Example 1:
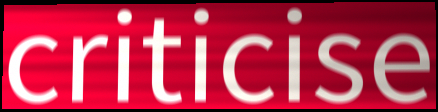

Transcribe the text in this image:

criticise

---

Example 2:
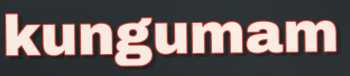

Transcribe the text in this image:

kungumam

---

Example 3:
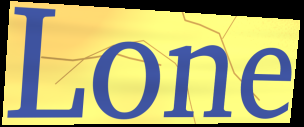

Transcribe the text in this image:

Lone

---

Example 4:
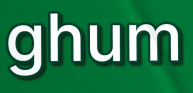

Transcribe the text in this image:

ghum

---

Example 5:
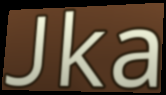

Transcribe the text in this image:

Jka